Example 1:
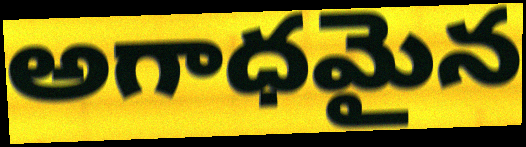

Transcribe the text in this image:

అగాధమైన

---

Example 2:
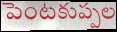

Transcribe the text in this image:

పెంటకుప్పల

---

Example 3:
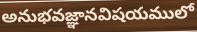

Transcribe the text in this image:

అనుభవజ్ఞానవిషయములో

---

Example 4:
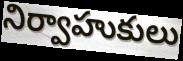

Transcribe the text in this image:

నిర్వాహుకులు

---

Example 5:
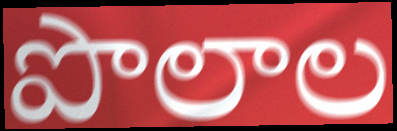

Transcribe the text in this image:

పొలాల